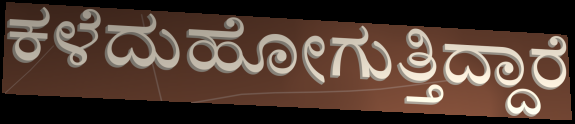
ಕಳೆದುಹೋಗುತ್ತಿದ್ದಾರೆ